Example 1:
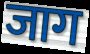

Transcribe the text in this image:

जाग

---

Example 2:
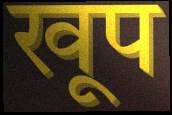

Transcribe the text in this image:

खूप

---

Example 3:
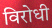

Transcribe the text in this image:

विरोधी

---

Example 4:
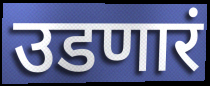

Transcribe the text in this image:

उडणारं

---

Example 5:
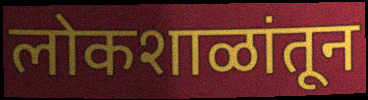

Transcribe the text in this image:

लोकशाळांतून